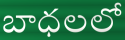
బాధలలో